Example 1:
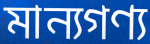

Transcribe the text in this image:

মান্যগণ্য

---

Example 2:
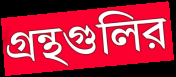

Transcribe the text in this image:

গ্রন্থগুলির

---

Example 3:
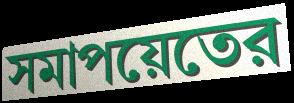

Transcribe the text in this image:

সমাপয়েতের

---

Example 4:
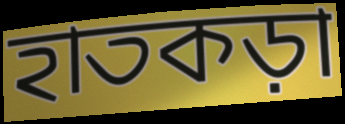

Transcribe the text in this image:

হাতকড়া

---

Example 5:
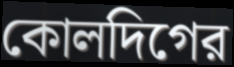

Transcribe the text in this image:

কোলদিগের